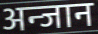
अन्जान